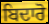
ਬਿਦਾਰੋ